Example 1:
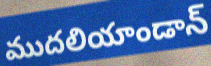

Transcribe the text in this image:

ముదలియాండాన్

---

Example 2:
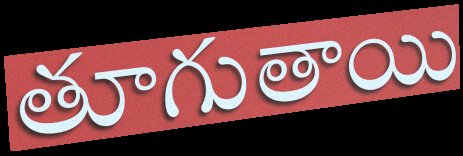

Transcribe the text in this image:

తూగుతాయి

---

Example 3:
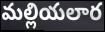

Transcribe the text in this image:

మల్లియలార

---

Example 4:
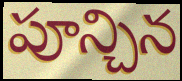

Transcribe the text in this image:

పూన్చిన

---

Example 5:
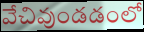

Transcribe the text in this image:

వేచివుండడంలో